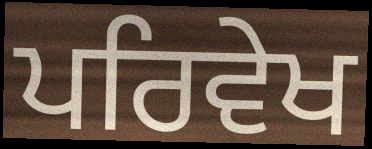
ਪਰਿਵੇਖ